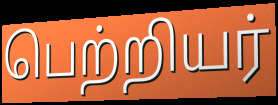
பெற்றியர்